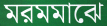
মরমমাঝে